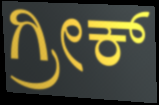
ಗ್ರೀಕ್